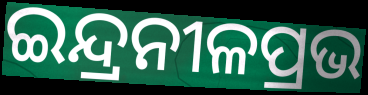
ଇନ୍ଦ୍ରନୀଳପ୍ରଭ